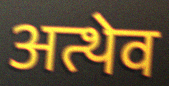
अत्थेव